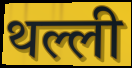
थल्ली